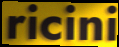
ricini